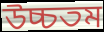
উচ্চতম